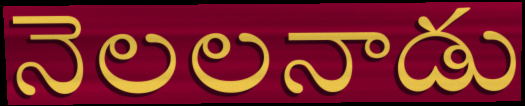
నెలలనాడు